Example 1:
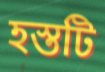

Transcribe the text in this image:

হস্তটি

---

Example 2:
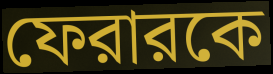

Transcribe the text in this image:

ফেরারকে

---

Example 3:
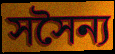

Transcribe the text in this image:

সসৈন্য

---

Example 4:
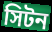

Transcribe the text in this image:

সিটন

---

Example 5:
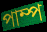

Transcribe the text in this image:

পাম্প